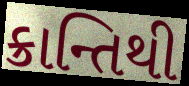
ક્રાન્તિથી